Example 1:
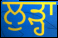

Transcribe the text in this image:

ਲੁੜ੍ਹਾ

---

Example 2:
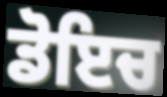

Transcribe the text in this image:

ਡੋਇਚ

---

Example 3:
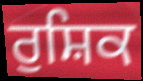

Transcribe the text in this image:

ਰੁਸ਼ਿਕ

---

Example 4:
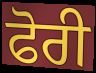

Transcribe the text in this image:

ਫੋਰੀ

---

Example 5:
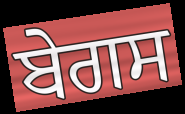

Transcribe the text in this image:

ਬੇਗਸ